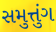
સમુત્તુંગ